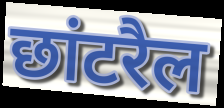
छांटरैल